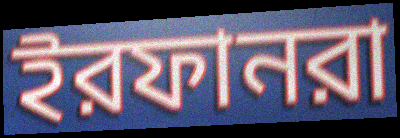
ইরফানরা